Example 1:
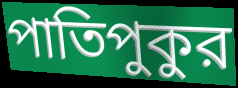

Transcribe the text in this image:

পাতিপুকুর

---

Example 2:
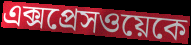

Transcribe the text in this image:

এক্সপ্রেসওয়েকে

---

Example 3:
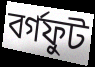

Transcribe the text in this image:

বর্গফুট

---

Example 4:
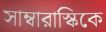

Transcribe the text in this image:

সাম্বারাস্কিকে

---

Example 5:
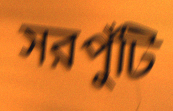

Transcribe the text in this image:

সরপুঁটি